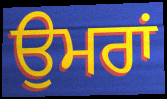
ਉਮਰਾਂ